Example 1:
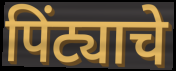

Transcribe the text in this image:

पिंट्याचे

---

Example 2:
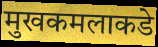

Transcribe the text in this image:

मुखकमलाकडे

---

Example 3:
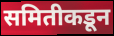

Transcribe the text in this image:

समितीकडून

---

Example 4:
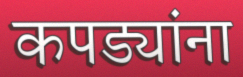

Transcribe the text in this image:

कपड्यांना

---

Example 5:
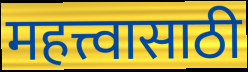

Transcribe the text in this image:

महत्त्वासाठी